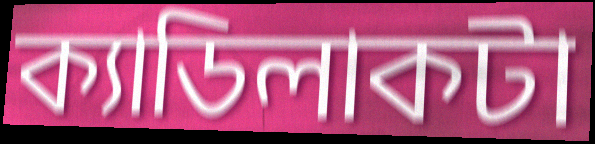
ক্যাডিলাকটা